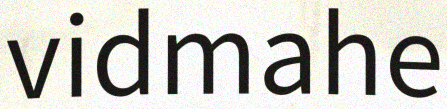
vidmahe